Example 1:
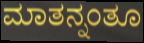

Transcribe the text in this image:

ಮಾತನ್ನಂತೂ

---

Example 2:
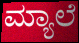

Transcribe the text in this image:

ಮ್ಯಾಲೆ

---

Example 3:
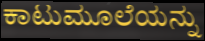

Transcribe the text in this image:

ಕಾಟುಮೂಲೆಯನ್ನು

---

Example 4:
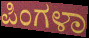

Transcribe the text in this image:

ಪಿಂಗಳಾ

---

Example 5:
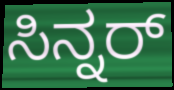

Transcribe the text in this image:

ಸಿನ್ನರ್